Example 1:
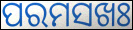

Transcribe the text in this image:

ପରମସଖଃ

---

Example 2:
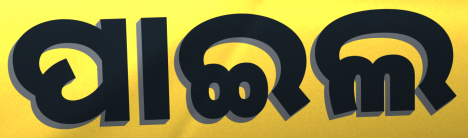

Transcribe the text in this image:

ପାଇଲ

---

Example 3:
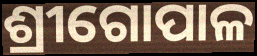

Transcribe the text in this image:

ଶ୍ରୀଗୋପାଳ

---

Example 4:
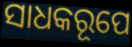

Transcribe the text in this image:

ସାଧକରୂପେ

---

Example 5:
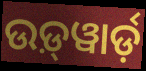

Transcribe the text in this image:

ଉଡ଼୍‍ୱାର୍ଡ଼